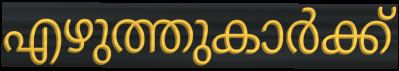
എഴുത്തുകാർക്ക്